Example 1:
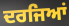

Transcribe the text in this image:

ਦਰਜਿਆਂ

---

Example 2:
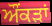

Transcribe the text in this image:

ਔਂਕੜਾਂ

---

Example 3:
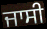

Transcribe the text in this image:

ਜਾਸੀ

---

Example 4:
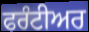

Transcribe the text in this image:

ਫਰੰਟੀਅਰ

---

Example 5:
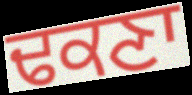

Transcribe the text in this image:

ਢਕਣਾ